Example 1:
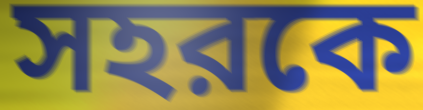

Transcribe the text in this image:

সহরকে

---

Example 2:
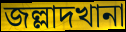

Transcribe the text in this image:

জল্লাদখানা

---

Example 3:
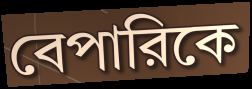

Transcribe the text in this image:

বেপারিকে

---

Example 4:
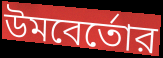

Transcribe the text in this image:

উমবের্তোর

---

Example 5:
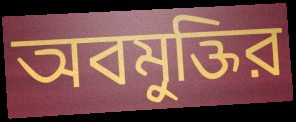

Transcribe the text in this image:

অবমুক্তির